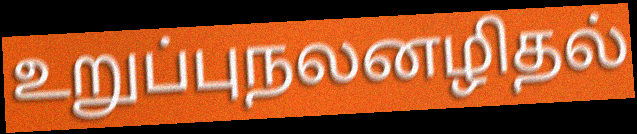
உறுப்புநலனழிதல்